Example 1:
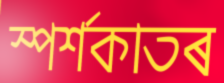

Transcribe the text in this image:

স্পৰ্শকাতৰ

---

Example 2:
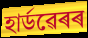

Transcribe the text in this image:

হাৰ্ডৱেৰৰ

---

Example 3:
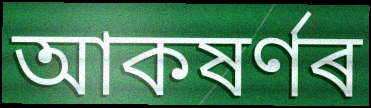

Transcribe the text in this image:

আকষৰ্ণৰ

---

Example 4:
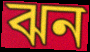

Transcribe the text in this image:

ঝন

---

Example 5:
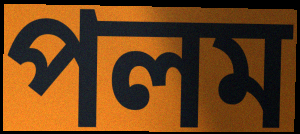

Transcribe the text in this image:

পলম